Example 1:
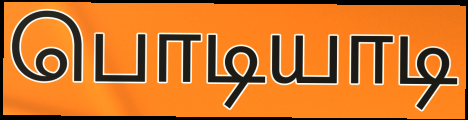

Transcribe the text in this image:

பொடியாடி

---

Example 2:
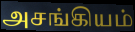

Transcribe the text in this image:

அசங்கியம்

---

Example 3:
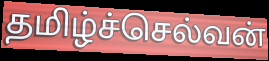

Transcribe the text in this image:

தமிழ்ச்செல்வன்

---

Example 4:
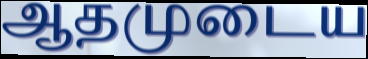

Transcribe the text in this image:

ஆதமுடைய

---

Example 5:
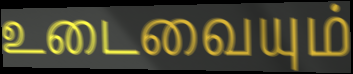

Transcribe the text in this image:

உடைவையும்